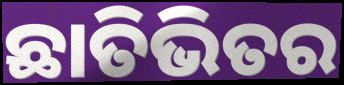
ଛାତିଭିତର